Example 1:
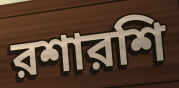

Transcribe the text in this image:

রশারশি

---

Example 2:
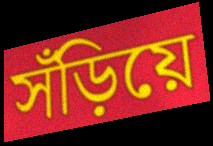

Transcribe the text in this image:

সঁড়িয়ে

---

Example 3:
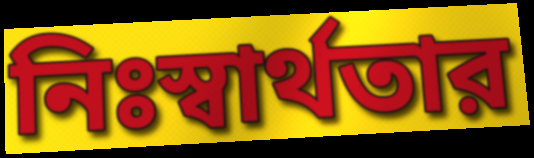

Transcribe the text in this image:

নিঃস্বার্থতার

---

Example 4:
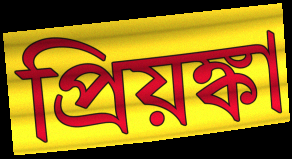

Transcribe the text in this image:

প্রিয়ঙ্কা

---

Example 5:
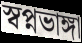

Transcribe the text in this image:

স্বপ্নভাঙ্গা